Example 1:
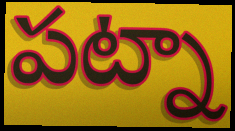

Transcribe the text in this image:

పట్నా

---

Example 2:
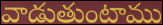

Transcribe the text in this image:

వాడుతుంటాము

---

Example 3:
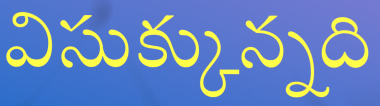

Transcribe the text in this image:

విసుక్కున్నది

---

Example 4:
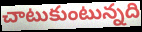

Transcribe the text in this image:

చాటుకుంటున్నది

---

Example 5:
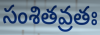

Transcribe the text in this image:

సంశితవ్రతః